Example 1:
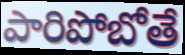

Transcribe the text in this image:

పారిపోబోతే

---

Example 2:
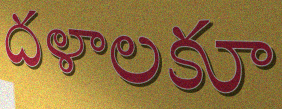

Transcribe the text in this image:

దళాలకూ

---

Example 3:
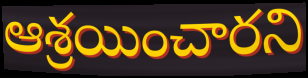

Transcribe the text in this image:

ఆశ్రయించారని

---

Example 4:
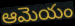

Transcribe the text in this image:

ఆమెయం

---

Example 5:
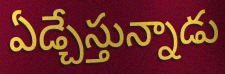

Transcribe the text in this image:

ఏడ్చేస్తున్నాడు